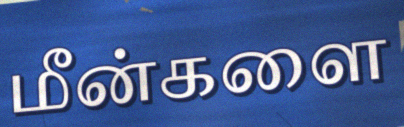
மீன்களை